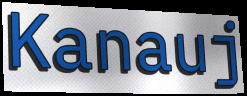
Kanauj